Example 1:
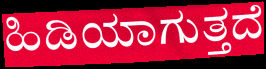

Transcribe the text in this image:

ಹಿಡಿಯಾಗುತ್ತದೆ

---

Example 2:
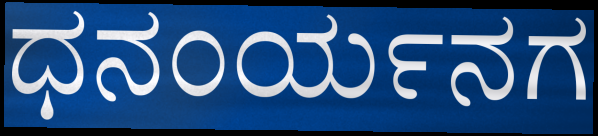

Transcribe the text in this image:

ಧನಂರ್ಯನಗ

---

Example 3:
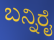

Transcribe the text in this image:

ಬನ್ನಿರೈ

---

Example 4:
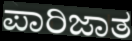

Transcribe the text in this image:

ಪಾರಿಜಾತ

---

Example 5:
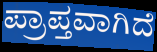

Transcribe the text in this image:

ಪ್ರಾಪ್ತವಾಗಿದೆ